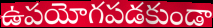
ఉపయోగపడకుండా